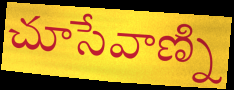
చూసేవాణ్ని